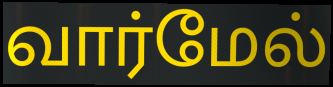
வார்மேல்